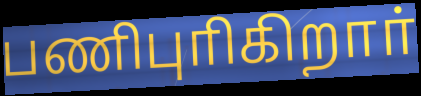
பணிபுரிகிறார்